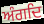
ਅੰਗਦਿ